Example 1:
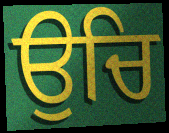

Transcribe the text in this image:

ਉਚਿ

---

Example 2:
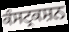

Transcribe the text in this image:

ਕੰਸਟ੍ਰਕਸ਼ਨ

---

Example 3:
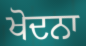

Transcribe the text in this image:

ਖੋਦਨਾ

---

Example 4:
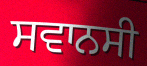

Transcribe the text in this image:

ਸਵਾਨਸੀ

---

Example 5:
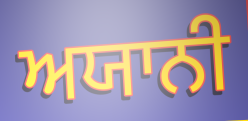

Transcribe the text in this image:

ਅਯਾਨੀ